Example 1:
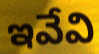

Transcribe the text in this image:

ఇవేవి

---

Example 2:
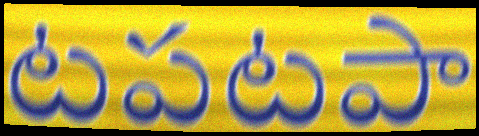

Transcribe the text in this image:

టపటపా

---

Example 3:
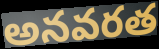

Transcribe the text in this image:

అనవరత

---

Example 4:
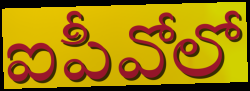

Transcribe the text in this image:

ఐపీవోలో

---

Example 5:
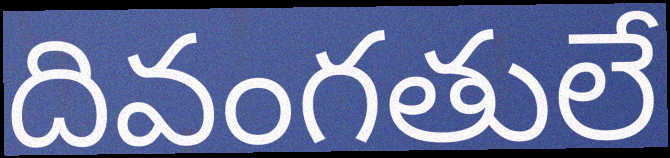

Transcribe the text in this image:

దివంగతులే